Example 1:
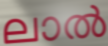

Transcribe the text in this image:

ലാൽ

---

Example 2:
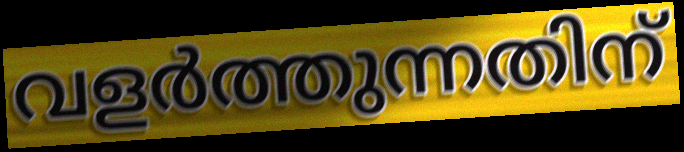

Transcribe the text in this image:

വളർത്തുന്നതിന്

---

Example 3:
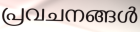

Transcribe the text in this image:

പ്രവചനങ്ങൾ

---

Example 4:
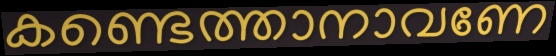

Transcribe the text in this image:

കണ്ടെത്താനാവണേ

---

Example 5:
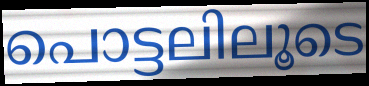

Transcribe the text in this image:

പൊട്ടലിലൂടെ